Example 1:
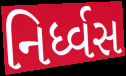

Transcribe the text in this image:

નિર્ધ્વસ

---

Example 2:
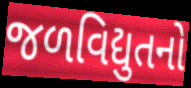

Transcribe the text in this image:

જળવિદ્યુતનો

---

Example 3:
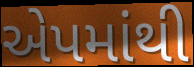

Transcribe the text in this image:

એપમાંથી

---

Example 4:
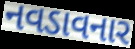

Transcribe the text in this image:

નવડાવનાર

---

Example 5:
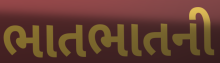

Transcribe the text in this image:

ભાતભાતની